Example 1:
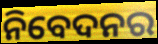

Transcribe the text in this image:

ନିବେଦନର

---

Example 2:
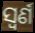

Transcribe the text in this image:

ସ୍ୱର୍ଣ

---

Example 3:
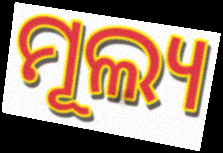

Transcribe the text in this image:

ମୂଲ୍ୟ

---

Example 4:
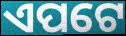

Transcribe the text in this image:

ଏପଟେ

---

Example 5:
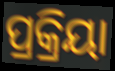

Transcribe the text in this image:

ପ୍ରକ୍ରିୟା